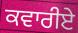
ਕਵਾਰੀਏ